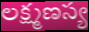
లక్ష్మణస్య